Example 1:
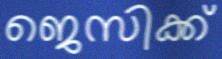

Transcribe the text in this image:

ജെസിക്ക്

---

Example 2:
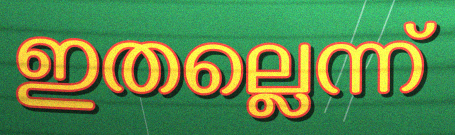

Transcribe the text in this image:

ഇതല്ലെന്ന്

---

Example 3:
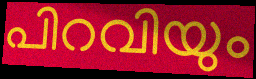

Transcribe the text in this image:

പിറവിയും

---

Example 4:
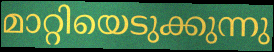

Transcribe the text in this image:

മാറ്റിയെടുക്കുന്നു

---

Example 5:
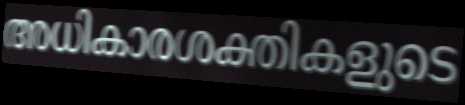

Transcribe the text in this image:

അധികാരശക്തികളുടെ